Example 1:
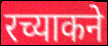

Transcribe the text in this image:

रच्याकने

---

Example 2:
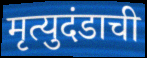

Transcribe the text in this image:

मृत्युदंडाची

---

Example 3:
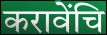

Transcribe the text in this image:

करावेंचि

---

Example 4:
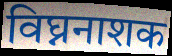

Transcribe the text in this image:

विघ्ननाशक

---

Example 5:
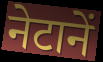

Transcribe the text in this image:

नेटानें